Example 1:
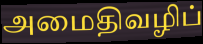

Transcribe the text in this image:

அமைதிவழிப்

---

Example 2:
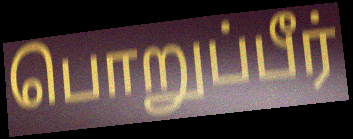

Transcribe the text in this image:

பொறுப்பீர்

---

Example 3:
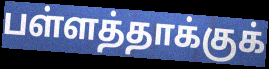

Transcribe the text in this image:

பள்ளத்தாக்குக்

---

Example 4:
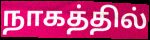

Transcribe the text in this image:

நாகத்தில்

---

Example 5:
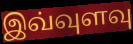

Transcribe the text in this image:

இவ்வுளவு